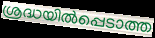
ശ്രദ്ധയിൽപ്പെടാത്ത